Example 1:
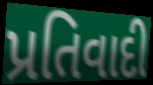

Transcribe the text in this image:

પ્રતિવાદી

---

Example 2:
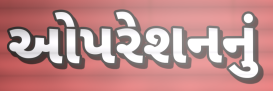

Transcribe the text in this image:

ઓપરેશનનું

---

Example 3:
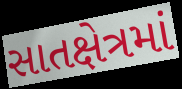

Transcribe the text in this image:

સાતક્ષેત્રમાં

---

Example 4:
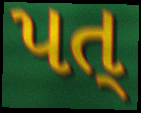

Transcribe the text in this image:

પત્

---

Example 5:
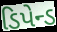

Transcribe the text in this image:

ડિપેન્ડ